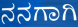
ನನಗಾಗಿ